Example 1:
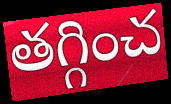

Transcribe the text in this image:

తగ్గించ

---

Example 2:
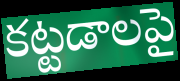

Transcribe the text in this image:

కట్టడాలపై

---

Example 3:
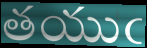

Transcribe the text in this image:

తయుఁ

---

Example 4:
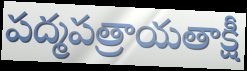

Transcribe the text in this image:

పద్మపత్రాయతాక్షీ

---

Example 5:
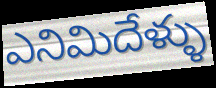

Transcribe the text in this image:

ఎనిమిదేళ్ళు